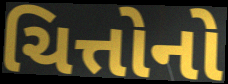
ચિત્તોનો